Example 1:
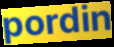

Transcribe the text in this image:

pordin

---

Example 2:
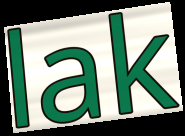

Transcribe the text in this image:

lak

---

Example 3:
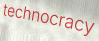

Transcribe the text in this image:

technocracy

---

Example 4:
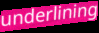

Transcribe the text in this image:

underlining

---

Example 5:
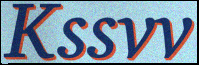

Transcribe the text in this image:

Kssvv